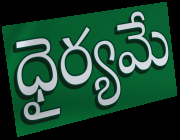
ధైర్యమే